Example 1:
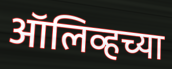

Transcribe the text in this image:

ऑलिव्हच्या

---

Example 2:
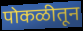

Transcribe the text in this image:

पोकळीतून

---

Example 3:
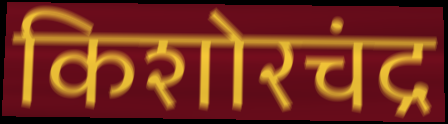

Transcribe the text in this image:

किशोरचंद्र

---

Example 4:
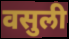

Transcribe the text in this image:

वसुली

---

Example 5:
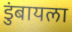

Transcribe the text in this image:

डुंबायला